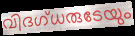
വിദഗ്ധരുടേയും